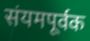
संयमपूर्वक